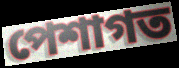
পেশাগত